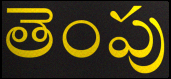
తెంపు